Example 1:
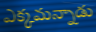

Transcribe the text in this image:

ఎక్కమన్నాడు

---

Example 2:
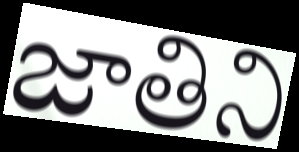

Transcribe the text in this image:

జాతిని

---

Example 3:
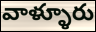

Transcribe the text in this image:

వాళ్ళూరు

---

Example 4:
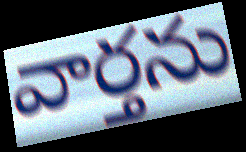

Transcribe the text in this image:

వార్తను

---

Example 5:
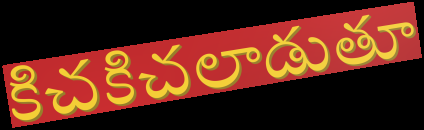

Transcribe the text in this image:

కిచకిచలాడుతూ